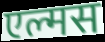
एल्मस